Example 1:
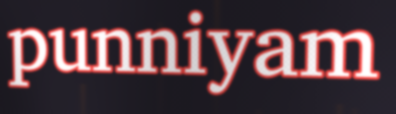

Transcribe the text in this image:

punniyam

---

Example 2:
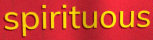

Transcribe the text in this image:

spirituous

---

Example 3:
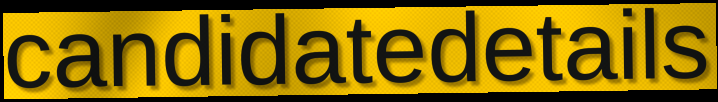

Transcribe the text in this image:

candidatedetails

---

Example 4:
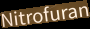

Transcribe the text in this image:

Nitrofuran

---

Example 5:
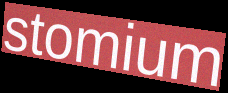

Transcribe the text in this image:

stomium